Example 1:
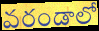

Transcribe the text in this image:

వరండాలో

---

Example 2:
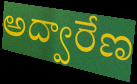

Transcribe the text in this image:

అద్వారేణ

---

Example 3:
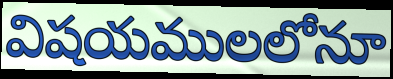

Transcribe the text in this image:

విషయములలోనూ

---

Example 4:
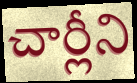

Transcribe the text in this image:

చార్లీని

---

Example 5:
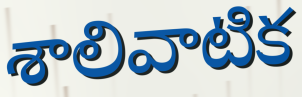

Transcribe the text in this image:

శాలివాటిక